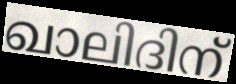
ഖാലിദിന്